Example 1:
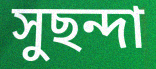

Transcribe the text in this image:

সুছন্দা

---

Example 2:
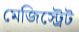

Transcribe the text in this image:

মেজিস্ট্রেট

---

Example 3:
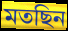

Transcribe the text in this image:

মতছিন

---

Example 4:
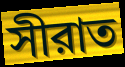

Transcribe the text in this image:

সীরাত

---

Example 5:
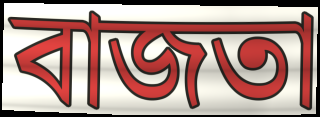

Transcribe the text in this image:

বাজতা